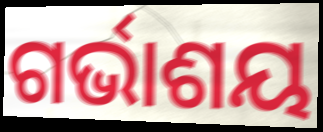
ଗର୍ଭାଶୟ